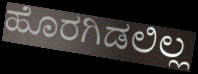
ಹೊರಗಿಡಲಿಲ್ಲ